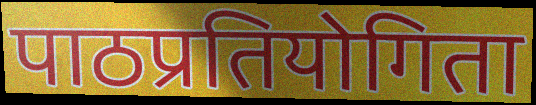
पाठप्रतियोगिता